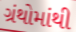
ગ્રંથોમાંથી